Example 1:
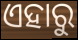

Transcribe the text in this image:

ଏହାରୁ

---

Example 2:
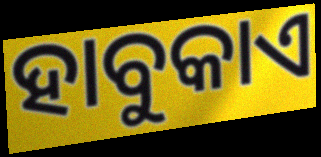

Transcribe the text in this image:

ହାବୁକାଏ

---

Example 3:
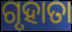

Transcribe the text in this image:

ଗୃହାତା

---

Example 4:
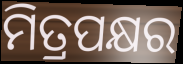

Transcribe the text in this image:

ମିତ୍ରପକ୍ଷର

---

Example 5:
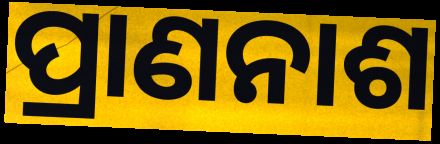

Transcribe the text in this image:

ପ୍ରାଣନାଶ